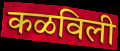
कळविली